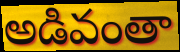
అడివంతా